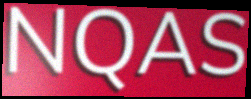
NQAS